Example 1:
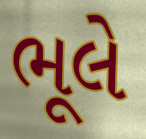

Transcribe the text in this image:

ભૂલે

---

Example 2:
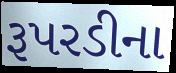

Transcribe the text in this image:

રૂપરડીના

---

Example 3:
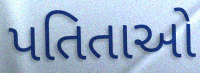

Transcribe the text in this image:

પતિતાઓ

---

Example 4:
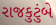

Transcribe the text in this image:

રાજકુટુંબે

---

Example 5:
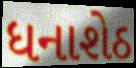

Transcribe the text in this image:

ધનાશેઠ